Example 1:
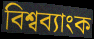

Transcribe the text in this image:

বিশ্বব্যাংক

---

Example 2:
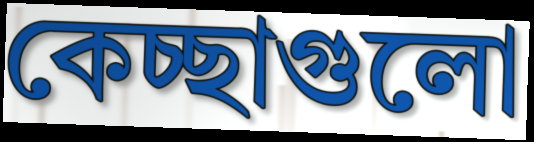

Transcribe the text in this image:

কেচ্ছাগুলো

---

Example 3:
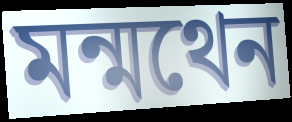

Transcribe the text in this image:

মন্মথেন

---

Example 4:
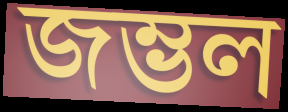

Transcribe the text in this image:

জম্ভল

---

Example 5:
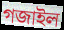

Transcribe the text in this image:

গজাইল